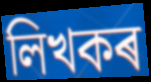
লিখকৰ